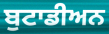
ਬੁਟਾਡੀਅਨ